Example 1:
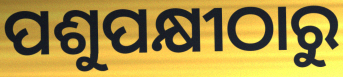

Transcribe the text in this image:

ପଶୁପକ୍ଷୀଠାରୁ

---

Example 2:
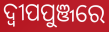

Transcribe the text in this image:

ଦ୍ୱୀପପୁଞ୍ଜରେ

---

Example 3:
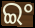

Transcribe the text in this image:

ଇଂ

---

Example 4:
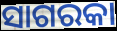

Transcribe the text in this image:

ସାଗରକା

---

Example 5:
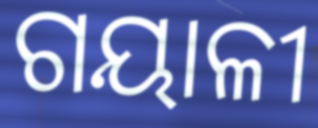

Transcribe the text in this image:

ଗୟାଳୀ